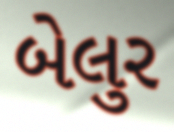
બેલુર